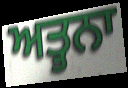
ਅਤ੍ਤਨਾ